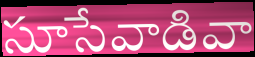
సూసేవాడివా